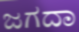
ಜಗದಾ